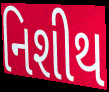
નિશીથ